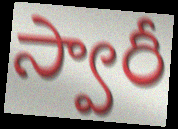
స్వారీ